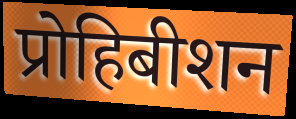
प्रोहिबीशन